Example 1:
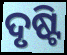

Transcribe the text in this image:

ଦୃଷ୍ଟି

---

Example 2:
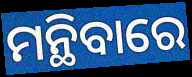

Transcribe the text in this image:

ମନ୍ଥିବାରେ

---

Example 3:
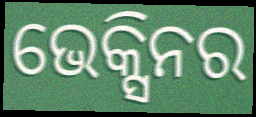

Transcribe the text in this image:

ଭେକ୍ସିନର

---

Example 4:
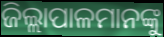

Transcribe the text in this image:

ଜିଲ୍ଲାପାଳମାନଙ୍କୁ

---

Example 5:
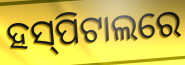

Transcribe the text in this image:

ହସ୍‌ପିଟାଲରେ